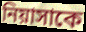
নিয়াসাকে